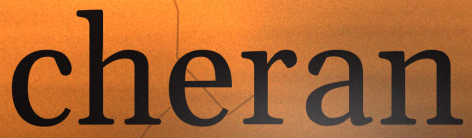
cheran